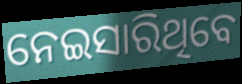
ନେଇସାରିଥିବେ